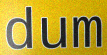
dum